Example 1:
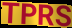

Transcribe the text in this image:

TPRS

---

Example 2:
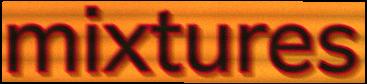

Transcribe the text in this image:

mixtures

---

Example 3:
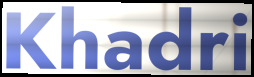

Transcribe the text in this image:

Khadri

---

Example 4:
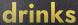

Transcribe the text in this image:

drinks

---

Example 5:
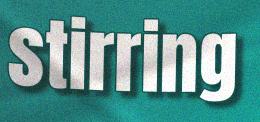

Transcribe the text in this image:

stirring